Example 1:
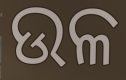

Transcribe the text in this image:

ଉଳ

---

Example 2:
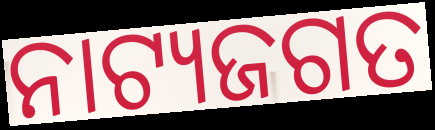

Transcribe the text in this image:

ନାଟ୍ୟଜଗତ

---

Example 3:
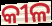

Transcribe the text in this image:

କୀଳ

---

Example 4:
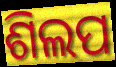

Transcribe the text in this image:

ଶିଲପ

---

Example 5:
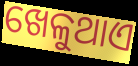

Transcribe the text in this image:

ଖେଳୁଥାଏ